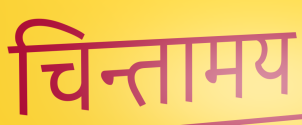
चिन्तामय